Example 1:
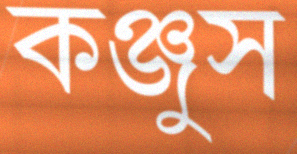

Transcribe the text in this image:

কঞ্জুস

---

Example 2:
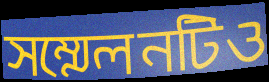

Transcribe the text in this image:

সম্মেলনটিও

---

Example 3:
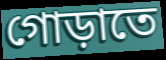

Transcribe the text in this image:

গোড়াতে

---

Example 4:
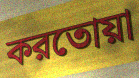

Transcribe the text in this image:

করতোয়া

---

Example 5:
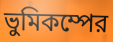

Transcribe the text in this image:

ভুমিকম্পের